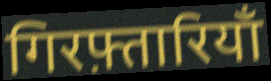
गिरफ़्तारियाँ